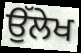
ਉੱਲੇਖ